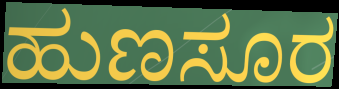
ಹುಣಸೂರ